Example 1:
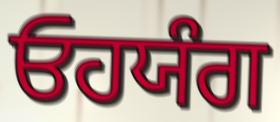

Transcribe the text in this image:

ਓਹਯੰਗ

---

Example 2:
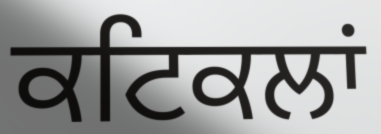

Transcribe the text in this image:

ਕਟਿਕਲਾਂ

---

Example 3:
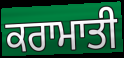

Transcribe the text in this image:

ਕਰਾਮਾਤੀ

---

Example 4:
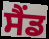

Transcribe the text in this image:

ਸੈਂਡ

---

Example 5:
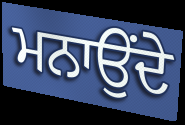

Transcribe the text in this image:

ਮਨਾਉਂਦੇ